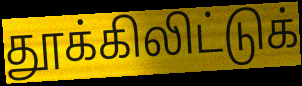
தூக்கிலிட்டுக்